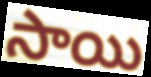
సాయి